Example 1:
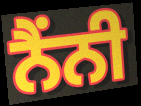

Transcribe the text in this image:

ਨੈਂਨੀ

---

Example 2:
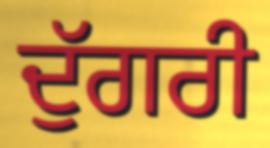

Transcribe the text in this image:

ਦੁੱਗਰੀ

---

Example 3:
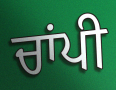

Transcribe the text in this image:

ਚਾਂਪੀ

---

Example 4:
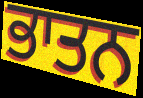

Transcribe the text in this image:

ਭਾਤਨ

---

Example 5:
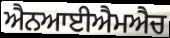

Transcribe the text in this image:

ਐਨਆਈਐਮਐਚ